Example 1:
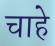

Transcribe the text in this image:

चाहे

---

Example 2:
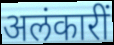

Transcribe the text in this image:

अलंकारीं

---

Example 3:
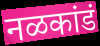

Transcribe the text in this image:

नळकांडं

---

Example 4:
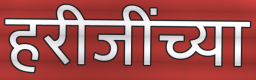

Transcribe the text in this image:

हरीजींच्या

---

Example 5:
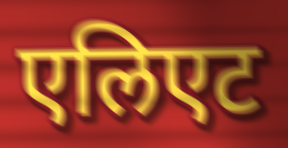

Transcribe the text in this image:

एलिएट